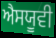
ਐਸਯੂਵੀ